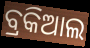
ବ୍ରକିଆଲ